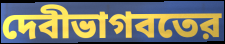
দেবীভাগবতের